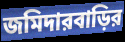
জমিদারবাড়ির